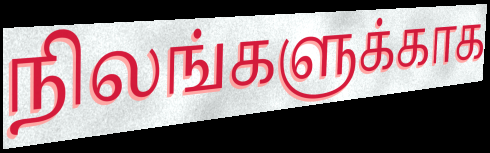
நிலங்களுக்காக